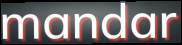
mandar